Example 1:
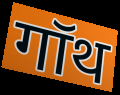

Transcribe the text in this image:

गॉथ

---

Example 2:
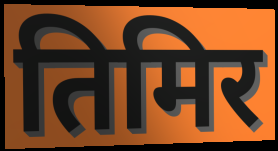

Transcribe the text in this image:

तिमिर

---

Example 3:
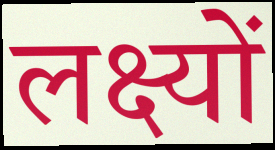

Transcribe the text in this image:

लक्ष्‍यों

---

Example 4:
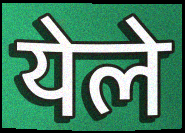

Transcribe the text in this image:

येले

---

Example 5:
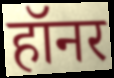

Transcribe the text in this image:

हॉनर